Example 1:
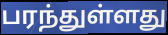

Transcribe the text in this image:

பரந்துள்ளது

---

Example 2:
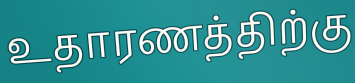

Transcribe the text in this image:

உதாரணத்திற்கு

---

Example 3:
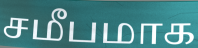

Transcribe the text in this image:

சமீபமாக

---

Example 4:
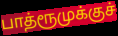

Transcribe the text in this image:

பாத்ரூமுக்குச்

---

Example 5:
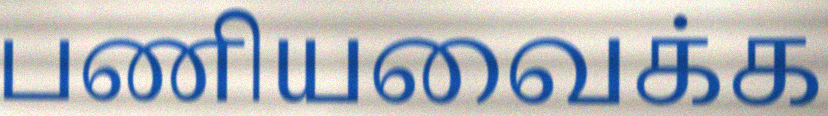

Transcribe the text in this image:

பணியவைக்க